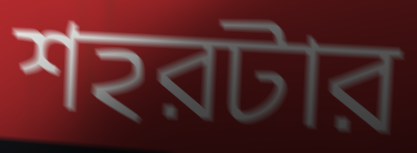
শহরটার